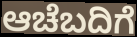
ಆಚೆಬದಿಗೆ